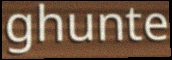
ghunte